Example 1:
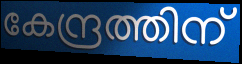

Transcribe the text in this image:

കേന്ദ്രത്തിന്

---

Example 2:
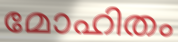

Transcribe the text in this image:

മോഹിതം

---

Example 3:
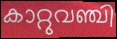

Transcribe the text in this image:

കാറ്റുവഞ്ചി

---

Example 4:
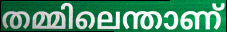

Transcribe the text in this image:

തമ്മിലെന്താണ്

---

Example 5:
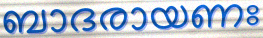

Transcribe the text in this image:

ബാദരായണഃ